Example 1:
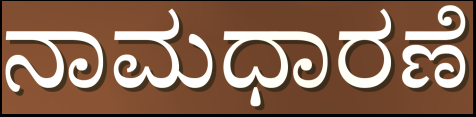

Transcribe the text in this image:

ನಾಮಧಾರಣೆ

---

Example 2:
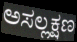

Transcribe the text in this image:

ಅಸಲ್ಲಕ್ಷಣ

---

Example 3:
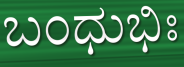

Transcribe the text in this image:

ಬಂಧುಭಿಃ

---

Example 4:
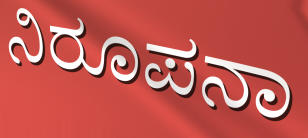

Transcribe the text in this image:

ನಿರೂಪನಾ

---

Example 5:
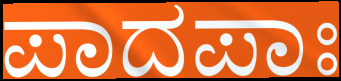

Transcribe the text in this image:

ಪಾದಪಾಃ